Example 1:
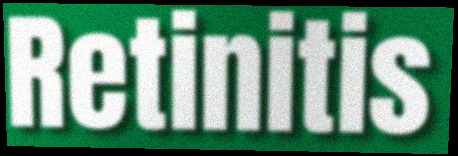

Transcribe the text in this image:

Retinitis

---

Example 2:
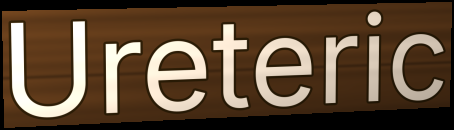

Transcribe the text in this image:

Ureteric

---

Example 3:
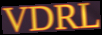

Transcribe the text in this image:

VDRL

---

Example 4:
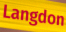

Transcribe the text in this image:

Langdon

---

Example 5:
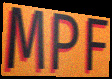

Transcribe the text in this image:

MPF